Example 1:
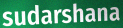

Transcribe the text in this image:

sudarshana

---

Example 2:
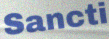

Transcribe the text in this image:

Sancti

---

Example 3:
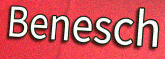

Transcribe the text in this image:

Benesch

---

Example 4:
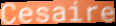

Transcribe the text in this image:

Cesaire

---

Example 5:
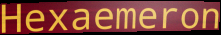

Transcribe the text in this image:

Hexaemeron